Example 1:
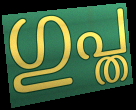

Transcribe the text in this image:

ഗുപ്ത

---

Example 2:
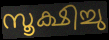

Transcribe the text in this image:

സൂക്ഷിച്ചു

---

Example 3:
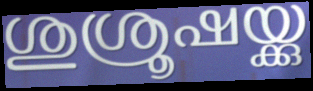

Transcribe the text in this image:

ശുശ്രൂഷയ്ക്കു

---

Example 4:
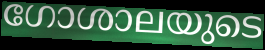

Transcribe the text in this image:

ഗോശാലയുടെ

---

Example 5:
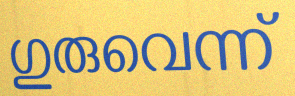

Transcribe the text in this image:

ഗുരുവെന്ന്